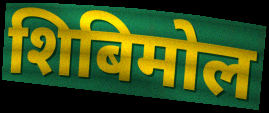
शिबिमोल